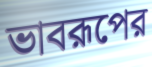
ভাবরূপের